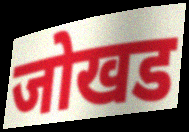
जोखड